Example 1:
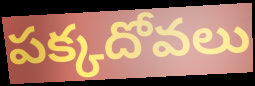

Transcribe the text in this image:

పక్కదోవలు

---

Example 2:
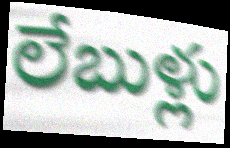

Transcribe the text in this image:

లేబుళ్లు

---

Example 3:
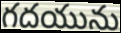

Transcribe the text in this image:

గదయును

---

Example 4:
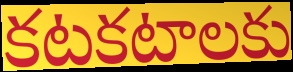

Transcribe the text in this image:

కటకటాలకు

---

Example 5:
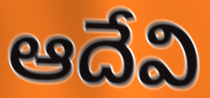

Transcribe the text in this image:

ఆదేవి